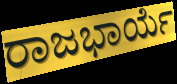
ರಾಜಭಾರ್ಯೆ